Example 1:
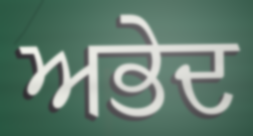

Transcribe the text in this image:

ਅਭੇਦ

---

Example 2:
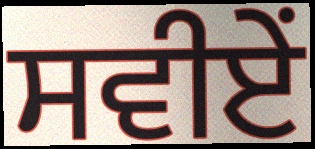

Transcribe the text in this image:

ਸਵੀਏਂ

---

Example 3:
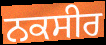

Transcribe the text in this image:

ਨਕਸੀਰ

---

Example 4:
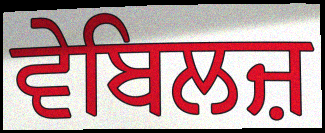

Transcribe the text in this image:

ਵੇਬਿਲਜ਼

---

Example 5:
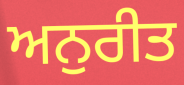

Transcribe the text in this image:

ਅਨੁਰੀਤ